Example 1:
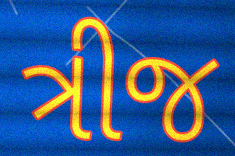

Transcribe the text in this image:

ત્રીજ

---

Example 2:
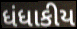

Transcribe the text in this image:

ધંધાકીય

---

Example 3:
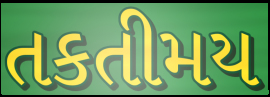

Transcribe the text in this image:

તકતીમય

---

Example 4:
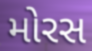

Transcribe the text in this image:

મોરસ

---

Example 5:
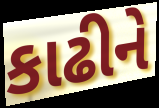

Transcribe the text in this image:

કાઢીને